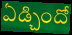
ఏడ్చిందో